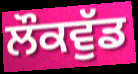
ਲੌਕਵੁੱਡ